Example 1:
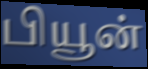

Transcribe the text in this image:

பியூன்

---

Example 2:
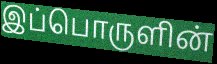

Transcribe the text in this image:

இப்பொருளின்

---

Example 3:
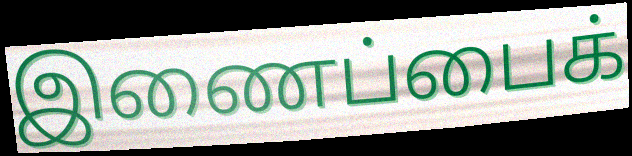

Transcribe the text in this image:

இணைப்பைக்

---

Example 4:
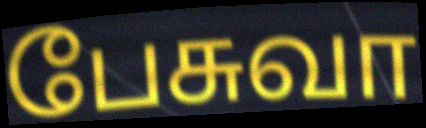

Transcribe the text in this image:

பேசுவா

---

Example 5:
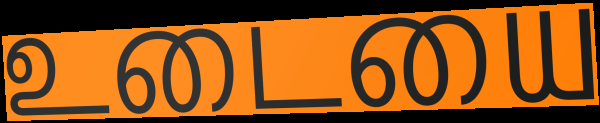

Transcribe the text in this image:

உடையை